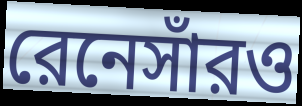
রেনেসাঁরও